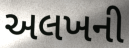
અલખની